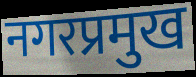
नगरप्रमुख